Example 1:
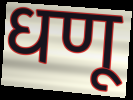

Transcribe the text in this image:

धणू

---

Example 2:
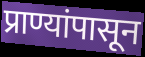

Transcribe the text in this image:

प्राण्यांपासून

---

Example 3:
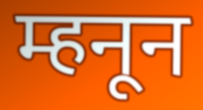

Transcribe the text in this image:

म्हनून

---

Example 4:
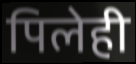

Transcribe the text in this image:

पिलेही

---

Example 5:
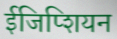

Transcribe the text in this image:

ईजिप्शियन